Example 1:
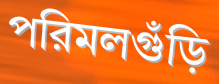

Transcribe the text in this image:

পরিমলগুঁড়ি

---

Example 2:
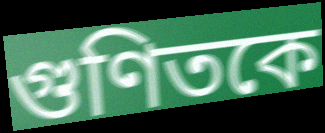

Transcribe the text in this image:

গুণিতকে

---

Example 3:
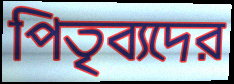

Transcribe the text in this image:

পিতৃব্যদের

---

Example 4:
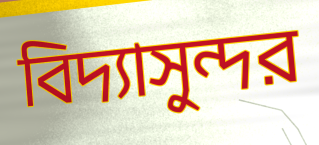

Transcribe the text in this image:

বিদ্যাসুন্দর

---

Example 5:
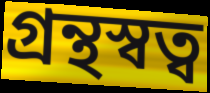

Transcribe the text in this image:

গ্রন্থস্বত্ব